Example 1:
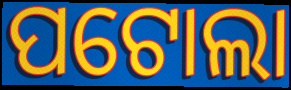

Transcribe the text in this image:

ପଟୋଲା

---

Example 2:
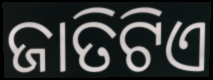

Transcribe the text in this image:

ଜାତିଟିଏ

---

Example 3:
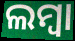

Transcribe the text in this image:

ଲମ୍ବା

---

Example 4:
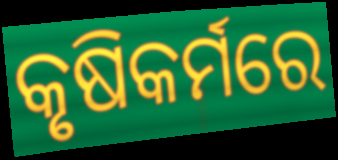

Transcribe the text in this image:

କୃଷିକର୍ମରେ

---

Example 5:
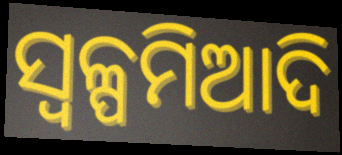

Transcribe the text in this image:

ସ୍ବଳ୍ପମିଆଦି